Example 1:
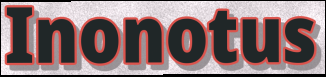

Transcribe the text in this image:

Inonotus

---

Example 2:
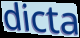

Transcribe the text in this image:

dicta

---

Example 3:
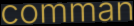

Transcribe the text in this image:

comman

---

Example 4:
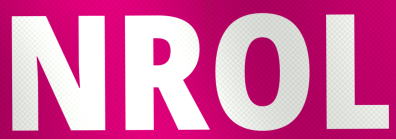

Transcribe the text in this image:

NROL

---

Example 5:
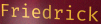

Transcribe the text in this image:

Friedrick